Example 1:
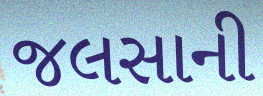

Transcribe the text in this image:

જલસાની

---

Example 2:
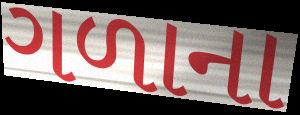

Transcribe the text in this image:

ગળાના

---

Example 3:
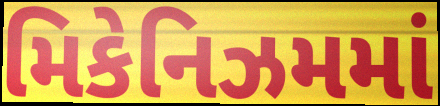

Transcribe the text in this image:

મિકેનિઝમમાં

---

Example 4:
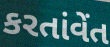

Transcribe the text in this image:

કરતાંવેંત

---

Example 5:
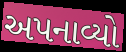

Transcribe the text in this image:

અપનાવ્યો